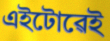
এইটোৱেই